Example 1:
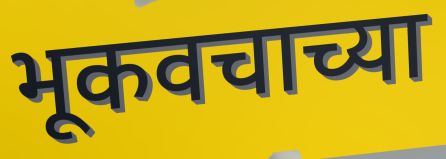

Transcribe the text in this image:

भूकवचाच्या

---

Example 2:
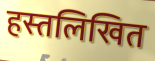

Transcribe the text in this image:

हस्तलिखित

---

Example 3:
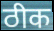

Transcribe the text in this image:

ठीक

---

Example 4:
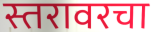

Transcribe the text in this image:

स्तरावरचा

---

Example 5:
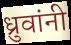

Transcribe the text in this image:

ध्रुवांनी